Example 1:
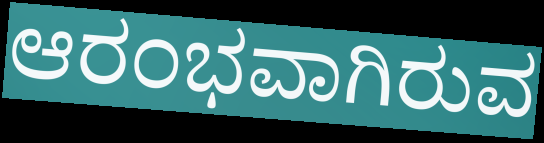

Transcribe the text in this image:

ಆರಂಭವಾಗಿರುವ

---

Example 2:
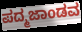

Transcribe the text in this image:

ಪದ್ಮಜಾಂಡವ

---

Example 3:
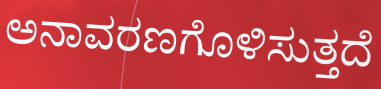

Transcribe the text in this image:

ಅನಾವರಣಗೊಳಿಸುತ್ತದೆ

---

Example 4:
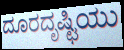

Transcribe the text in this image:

ದೂರದೃಷ್ಟಿಯು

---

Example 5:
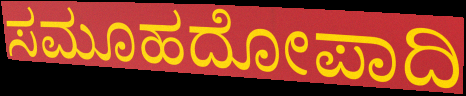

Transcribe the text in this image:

ಸಮೂಹದೋಪಾದಿ